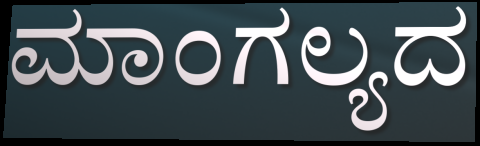
ಮಾಂಗಲ್ಯದ